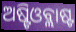
ଅଷ୍ଟିଓବ୍ଲାଷ୍ଟ